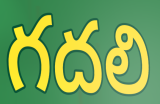
గదలి